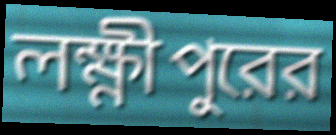
লক্ষ্ণীপুরের